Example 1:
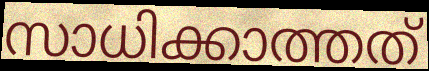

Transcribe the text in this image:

സാധിക്കാത്തത്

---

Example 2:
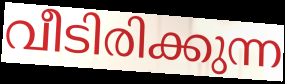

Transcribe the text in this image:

വീടിരിക്കുന്ന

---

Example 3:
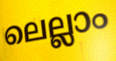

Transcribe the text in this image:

ലെല്ലാം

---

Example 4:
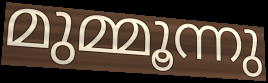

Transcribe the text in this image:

മുമ്മൂന്നു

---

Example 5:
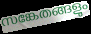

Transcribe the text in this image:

സങ്കേതങ്ങളും